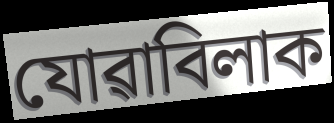
যোৱাবিলাক